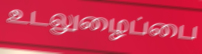
உடலுழைப்பை